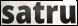
satru